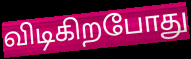
விடிகிறபோது